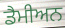
ਡੈਮੀਅਨ